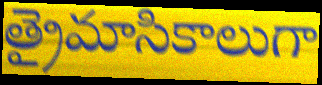
త్రైమాసికాలుగా